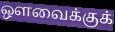
ஔவைக்குக்